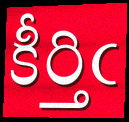
కీర్తిఁ